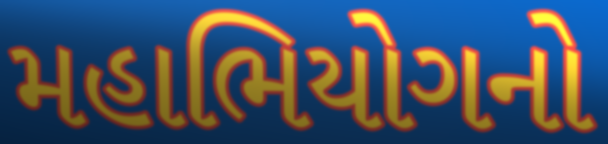
મહાભિયોગનો